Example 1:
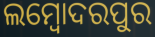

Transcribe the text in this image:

ଲମ୍ବୋଦରପୁର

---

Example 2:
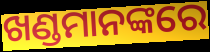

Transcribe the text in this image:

ଖଣ୍ଡମାନଙ୍କରେ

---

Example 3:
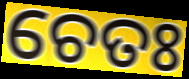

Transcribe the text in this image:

ଚେତଃ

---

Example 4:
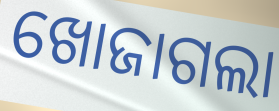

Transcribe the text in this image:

ଖୋଜାଗଲା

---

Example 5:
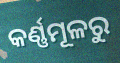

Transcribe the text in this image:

କର୍ଣ୍ଣମୂଳରୁ